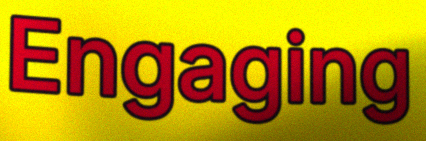
Engaging